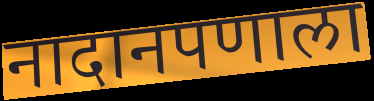
नादानपणाला